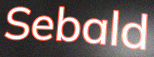
Sebald